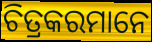
ଚିତ୍ରକରମାନେ